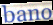
bano